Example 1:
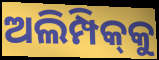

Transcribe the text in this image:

ଅଲିମ୍ପିକ୍‌କୁ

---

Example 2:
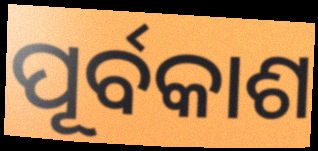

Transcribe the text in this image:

ପୂର୍ବକାଶ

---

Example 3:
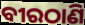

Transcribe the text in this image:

ବୀରଠାଣି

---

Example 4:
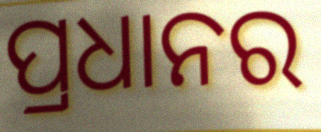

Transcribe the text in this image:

ପ୍ରଧାନର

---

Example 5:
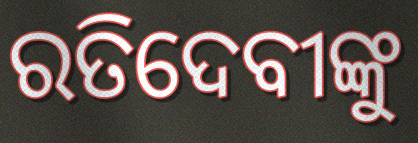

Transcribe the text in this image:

ରତିଦେବୀଙ୍କୁ